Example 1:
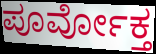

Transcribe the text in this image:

ಪೂರ್ವೋಕ್ತ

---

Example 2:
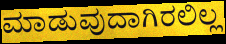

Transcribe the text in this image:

ಮಾಡುವುದಾಗಿರಲಿಲ್ಲ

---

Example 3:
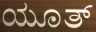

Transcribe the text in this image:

ಯೂತ್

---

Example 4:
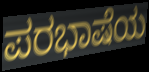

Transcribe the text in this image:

ಪರಭಾಷೆಯ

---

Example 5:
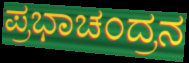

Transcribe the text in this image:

ಪ್ರಭಾಚಂದ್ರನ